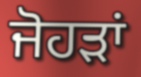
ਜੋਹੜਾਂ